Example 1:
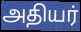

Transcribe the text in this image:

அதியர்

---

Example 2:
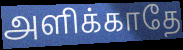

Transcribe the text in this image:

அளிக்காதே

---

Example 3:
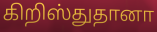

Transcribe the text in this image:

கிறிஸ்துதானா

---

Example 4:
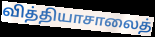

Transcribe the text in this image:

வித்தியாசாலைத்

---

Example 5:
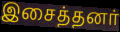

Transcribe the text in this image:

இசைத்தனர்